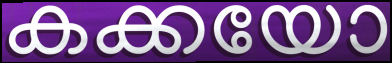
കക്കയോ